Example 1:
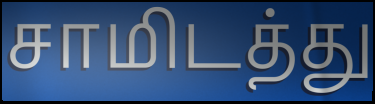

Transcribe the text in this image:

சாமிடத்து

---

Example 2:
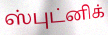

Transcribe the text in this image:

ஸ்புட்னிக்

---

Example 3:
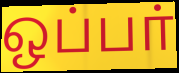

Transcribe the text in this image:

ஒப்பர்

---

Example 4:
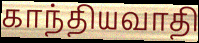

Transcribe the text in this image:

காந்தியவாதி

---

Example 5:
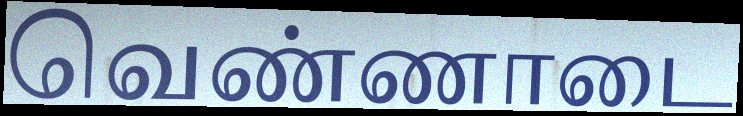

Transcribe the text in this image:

வெண்ணாடை